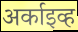
अर्काइव्ह